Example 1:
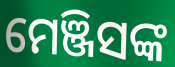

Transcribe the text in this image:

ମେଞ୍ଜିସଙ୍କ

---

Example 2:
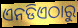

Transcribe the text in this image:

ଏନଡିଏଠାରୁ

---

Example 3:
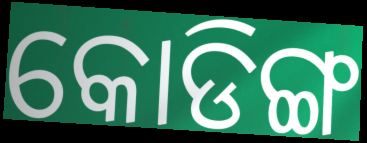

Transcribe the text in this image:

କୋଡିଙ୍ଗ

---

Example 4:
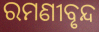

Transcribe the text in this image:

ରମଣୀବୃନ୍ଦ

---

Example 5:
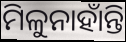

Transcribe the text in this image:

ମିଳୁନାହାଁନ୍ତି